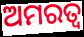
ଅମରତ୍ଵ